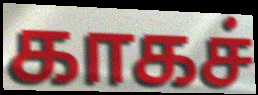
காகச்